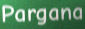
Pargana